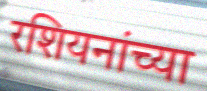
रशियनांच्या